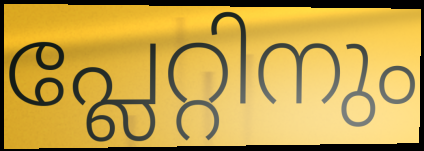
പ്ലേറ്റിനും